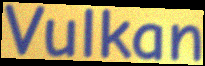
Vulkan